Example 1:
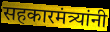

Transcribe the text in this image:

सहकारमंत्र्यांनी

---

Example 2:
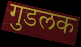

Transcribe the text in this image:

गुडलक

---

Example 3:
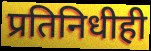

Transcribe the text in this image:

प्रतिनिधीही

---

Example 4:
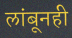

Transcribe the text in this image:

लांबूनही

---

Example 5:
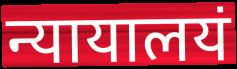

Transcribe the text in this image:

न्यायालयं